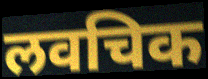
लवचिक